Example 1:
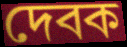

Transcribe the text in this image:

দেবক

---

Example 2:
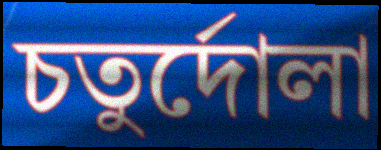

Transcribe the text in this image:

চতুর্দোলা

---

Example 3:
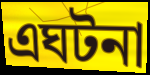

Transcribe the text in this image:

এঘটনা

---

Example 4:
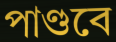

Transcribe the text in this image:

পাণ্ডবে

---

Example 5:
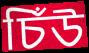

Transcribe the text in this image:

চিঁউ